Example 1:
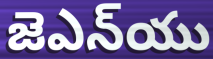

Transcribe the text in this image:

జెఎన్‌యు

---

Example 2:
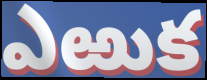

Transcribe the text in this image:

ఎఱుక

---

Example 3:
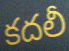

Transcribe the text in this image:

కదలీ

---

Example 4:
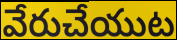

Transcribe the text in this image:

వేరుచేయుట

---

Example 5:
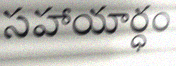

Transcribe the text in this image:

సహాయార్ధం